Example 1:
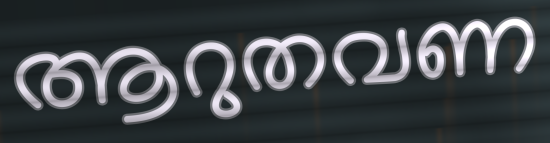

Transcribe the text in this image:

ആറുതവണ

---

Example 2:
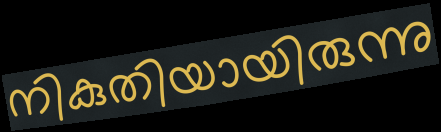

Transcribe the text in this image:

നികുതിയായിരുന്നു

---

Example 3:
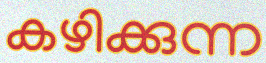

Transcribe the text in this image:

കഴിക്കുന്ന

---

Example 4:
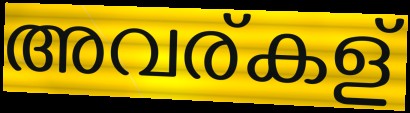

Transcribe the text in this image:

അവര്കള്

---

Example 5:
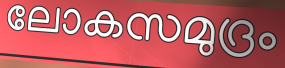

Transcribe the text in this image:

ലോകസമുദ്രം